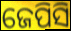
ଜେପିସି